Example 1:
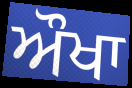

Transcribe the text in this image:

ਔਖਾ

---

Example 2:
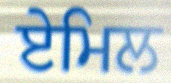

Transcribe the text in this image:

ਏਮਿਲ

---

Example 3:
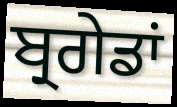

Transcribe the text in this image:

ਬ੍ਰਗੇਡਾਂ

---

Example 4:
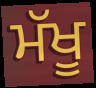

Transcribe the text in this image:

ਮੱਖੂ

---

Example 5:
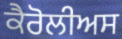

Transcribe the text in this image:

ਕੈਰੋਲੀਅਸ